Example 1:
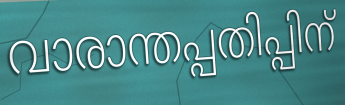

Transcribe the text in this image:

വാരാന്തപ്പതിപ്പിന്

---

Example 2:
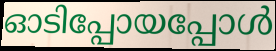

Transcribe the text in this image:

ഓടിപ്പോയപ്പോൾ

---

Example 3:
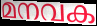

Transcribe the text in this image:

മനവക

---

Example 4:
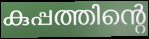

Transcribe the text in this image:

കുപ്പത്തിന്റെ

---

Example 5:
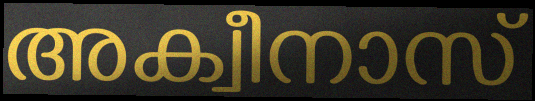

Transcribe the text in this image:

അക്വീനാസ്